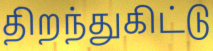
திறந்துகிட்டு